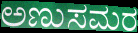
ಅಣುಸಮರ